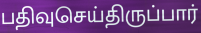
பதிவுசெய்திருப்பார்